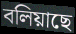
বলিয়াছে